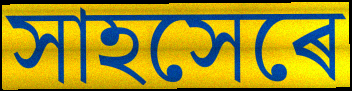
সাহসেৰে